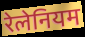
रेलेनियम